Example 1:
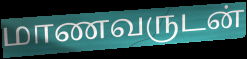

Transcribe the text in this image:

மாணவருடன்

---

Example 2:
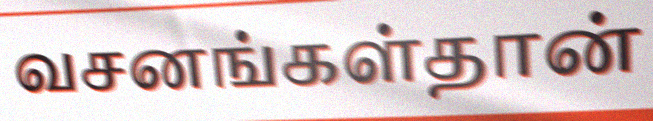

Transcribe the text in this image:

வசனங்கள்தான்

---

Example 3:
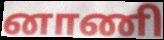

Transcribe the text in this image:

னாணி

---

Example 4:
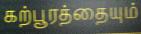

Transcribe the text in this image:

கற்பூரத்தையும்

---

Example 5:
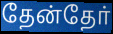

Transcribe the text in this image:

தேன்தேர்